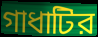
গাধাটির